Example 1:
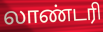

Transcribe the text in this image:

லாண்டரி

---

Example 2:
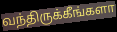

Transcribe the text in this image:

வந்திருக்கீங்களா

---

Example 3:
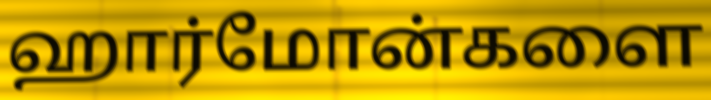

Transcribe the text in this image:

ஹார்மோன்களை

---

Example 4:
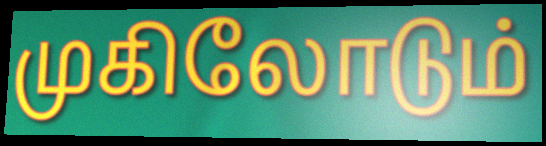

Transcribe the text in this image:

முகிலோடும்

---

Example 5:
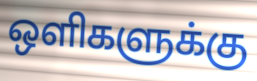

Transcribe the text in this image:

ஒளிகளுக்கு